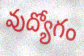
వుద్యోగం